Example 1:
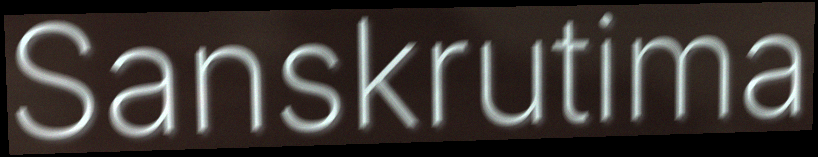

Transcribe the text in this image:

Sanskrutima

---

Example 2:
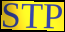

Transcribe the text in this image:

STP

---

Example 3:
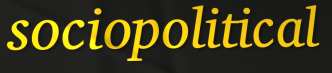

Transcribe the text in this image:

sociopolitical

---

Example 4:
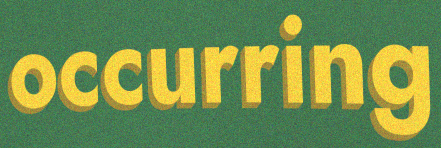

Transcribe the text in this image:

occurring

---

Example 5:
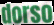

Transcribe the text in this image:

dorso